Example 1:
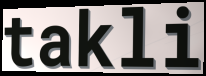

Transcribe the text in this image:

takli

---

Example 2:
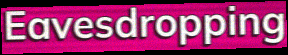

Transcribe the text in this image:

Eavesdropping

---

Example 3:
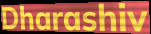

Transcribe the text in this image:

Dharashiv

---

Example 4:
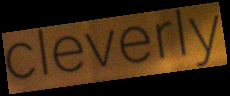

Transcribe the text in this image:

cleverly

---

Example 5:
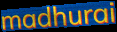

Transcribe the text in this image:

madhurai